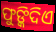
ଫୁଙ୍କିଦିଏ